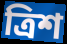
ত্রিশ